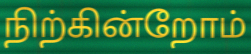
நிற்கின்றோம்